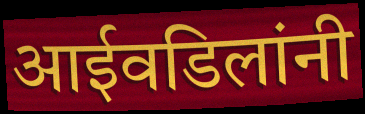
आईवडिलांनी